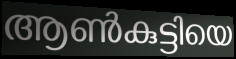
ആൺകുട്ടിയെ